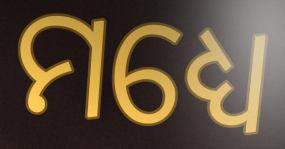
ମଧ୍ୟେ